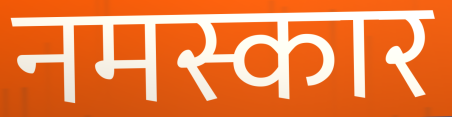
नमस्कार